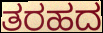
ತರಹದ